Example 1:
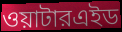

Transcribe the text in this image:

ওয়াটারএইড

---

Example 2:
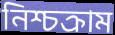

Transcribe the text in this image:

নিশ্চক্রাম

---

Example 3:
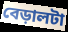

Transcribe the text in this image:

বেড়ালটা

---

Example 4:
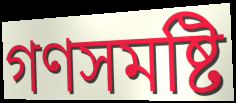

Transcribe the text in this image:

গণসমষ্টি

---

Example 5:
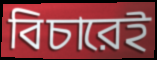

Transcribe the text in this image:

বিচারেই